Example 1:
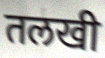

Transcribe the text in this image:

तलखी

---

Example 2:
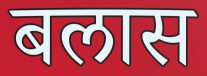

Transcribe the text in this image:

बलास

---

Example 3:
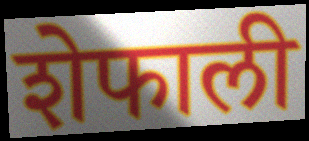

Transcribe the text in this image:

शेफाली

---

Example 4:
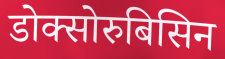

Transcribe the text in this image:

डोक्सोरुबिसिन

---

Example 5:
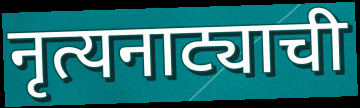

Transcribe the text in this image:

नृत्यनाट्याची